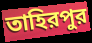
তাহিরপুর